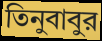
তিনুবাবুর